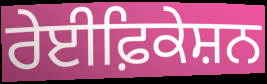
ਰੇਈਫ਼ਿਕੇਸ਼ਨ